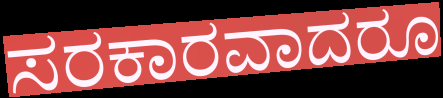
ಸರಕಾರವಾದರೂ